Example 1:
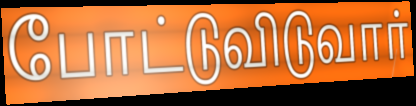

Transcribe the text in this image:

போட்டுவிடுவார்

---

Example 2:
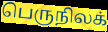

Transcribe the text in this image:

பெருநிலக்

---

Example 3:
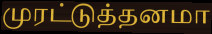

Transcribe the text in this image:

முரட்டுத்தனமா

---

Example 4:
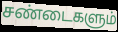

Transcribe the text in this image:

சண்டைகளும்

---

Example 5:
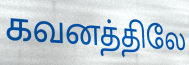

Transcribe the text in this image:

கவனத்திலே